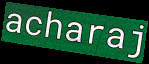
acharaj